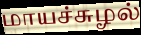
மாயச்சுழல்